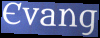
Evang